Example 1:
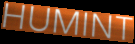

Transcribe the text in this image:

HUMINT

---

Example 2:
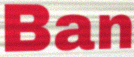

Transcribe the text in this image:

Ban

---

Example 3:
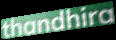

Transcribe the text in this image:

thandhira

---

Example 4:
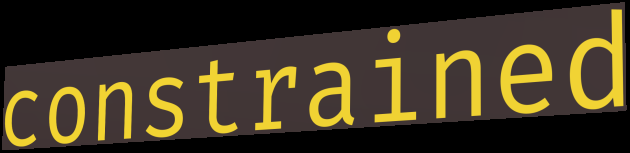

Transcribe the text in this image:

constrained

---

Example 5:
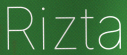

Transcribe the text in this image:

Rizta